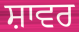
ਸ਼ਾਵਰ